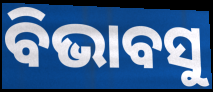
ବିଭାବସୁ